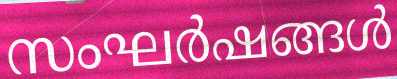
സംഘർഷങ്ങൾ